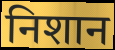
निशान